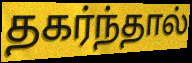
தகர்ந்தால்